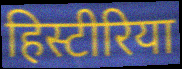
हिस्टीरिया